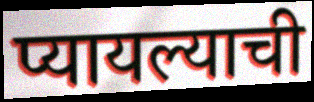
प्यायल्याची